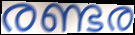
രണ്ടര